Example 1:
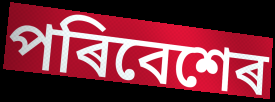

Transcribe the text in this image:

পৰিবেশেৰ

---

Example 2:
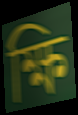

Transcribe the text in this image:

ক্ষি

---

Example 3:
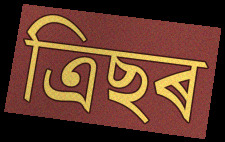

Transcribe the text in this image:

ত্ৰিছৰ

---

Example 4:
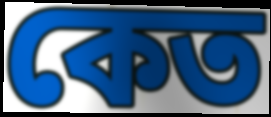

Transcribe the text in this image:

কেত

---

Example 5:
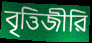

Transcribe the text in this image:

বৃত্তিজীৱি